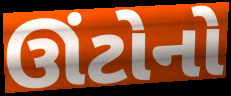
ઊંટોનો